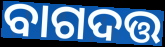
ବାଗଦତ୍ତ